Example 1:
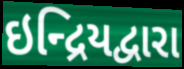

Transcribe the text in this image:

ઇન્દ્રિયદ્વારા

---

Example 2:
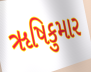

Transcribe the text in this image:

ૠષિકુમાર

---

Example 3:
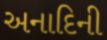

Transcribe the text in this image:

અનાદિની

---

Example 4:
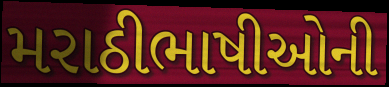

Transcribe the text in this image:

મરાઠીભાષીઓની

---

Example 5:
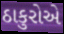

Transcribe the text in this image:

ઠાકુરોએ